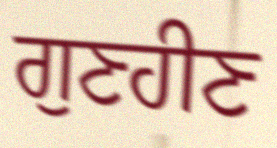
ਗੁਣਹੀਣ